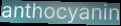
anthocyanin